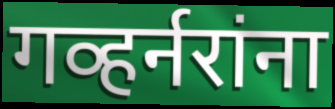
गव्हर्नरांना